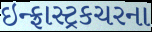
ઇન્ફ્રાસ્ટ્રકચરના